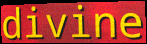
divine